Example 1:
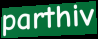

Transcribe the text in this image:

parthiv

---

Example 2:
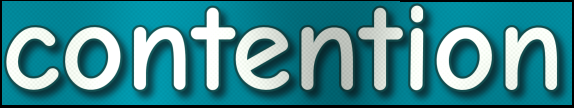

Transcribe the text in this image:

contention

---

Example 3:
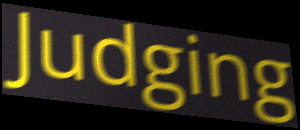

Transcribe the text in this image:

Judging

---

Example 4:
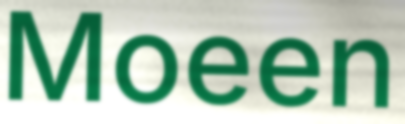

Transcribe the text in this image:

Moeen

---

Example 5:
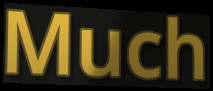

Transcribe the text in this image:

Much